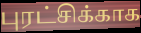
புரட்சிக்காக